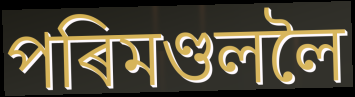
পৰিমণ্ডললৈ